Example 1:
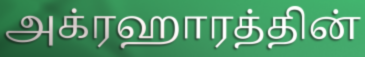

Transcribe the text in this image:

அக்ரஹாரத்தின்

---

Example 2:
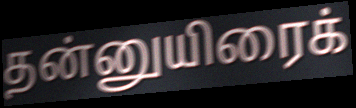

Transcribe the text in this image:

தன்னுயிரைக்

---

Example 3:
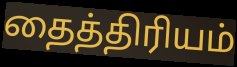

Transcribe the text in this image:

தைத்திரியம்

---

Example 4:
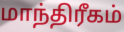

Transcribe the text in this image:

மாந்திரீகம்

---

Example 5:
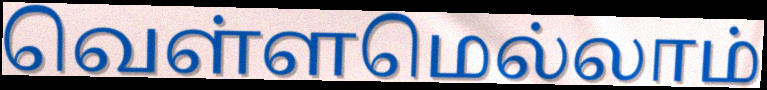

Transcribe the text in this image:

வெள்ளமெல்லாம்